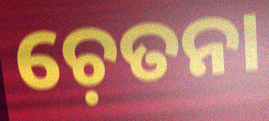
ଚ଼େତନା